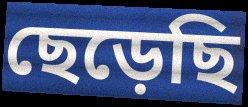
ছেড়েছি